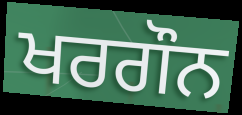
ਖਰਗੌਨ